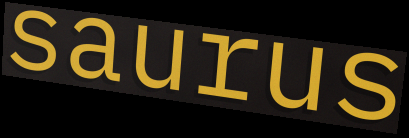
saurus